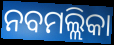
ନବମଲ୍ଲିକା